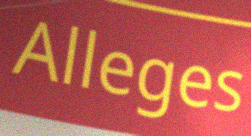
Alleges